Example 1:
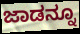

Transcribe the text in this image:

ಜಾಡನ್ನೂ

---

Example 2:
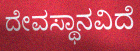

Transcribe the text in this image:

ದೇವಸ್ಥಾನವಿದೆ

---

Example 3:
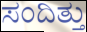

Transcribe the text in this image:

ಸಂದಿತ್ತು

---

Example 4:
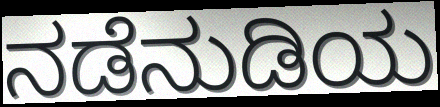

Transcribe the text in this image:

ನಡೆನುಡಿಯ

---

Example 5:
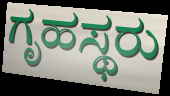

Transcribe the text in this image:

ಗೃಹಸ್ಥರು